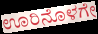
ಊರಿನೊಳಗೇ